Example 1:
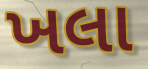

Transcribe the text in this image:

ખલા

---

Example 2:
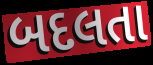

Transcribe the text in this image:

બદલતા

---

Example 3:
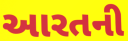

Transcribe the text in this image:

આરતની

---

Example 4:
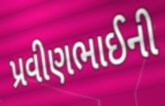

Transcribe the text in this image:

પ્રવીણભાઈની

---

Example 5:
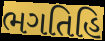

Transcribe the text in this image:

ભગતિહિ